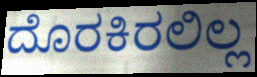
ದೊರಕಿರಲಿಲ್ಲ